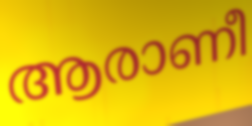
ആരാണീ